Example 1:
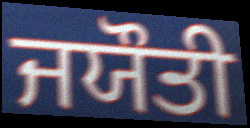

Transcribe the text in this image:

ਜਯੌਤੀ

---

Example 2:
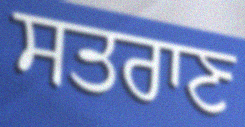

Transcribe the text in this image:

ਸਤਰਾਣ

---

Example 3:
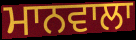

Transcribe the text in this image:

ਮਾਨਵਾਲਾ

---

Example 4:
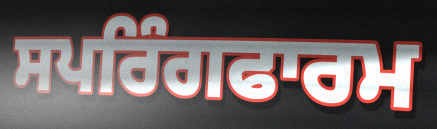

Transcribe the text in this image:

ਸਪਰਿੰਗਫਾਰਮ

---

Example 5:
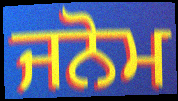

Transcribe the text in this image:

ਜਨੋਮ